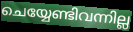
ചെയ്യേണ്ടിവന്നില്ല